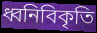
ধ্বনিবিকৃতি